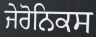
ਜੇਰੋਨਿਕਸ